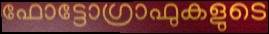
ഫോട്ടോഗ്രാഫുകളുടെ